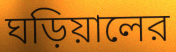
ঘড়িয়ালের